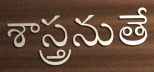
శాస్త్రనుతే